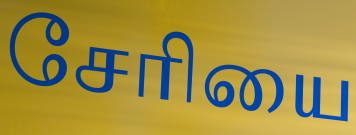
சேரியை